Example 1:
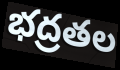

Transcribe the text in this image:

భద్రతల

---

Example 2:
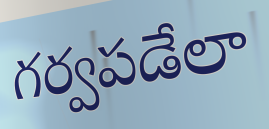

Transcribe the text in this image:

గర్వపడేలా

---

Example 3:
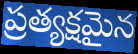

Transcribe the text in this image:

ప్రత్యక్షమైన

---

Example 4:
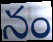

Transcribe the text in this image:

నం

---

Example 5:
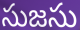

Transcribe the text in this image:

సుజసు